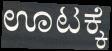
ಊಟಕ್ಕೆ